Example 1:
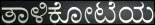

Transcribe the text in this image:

ತಾಳಿಕೋಟೆಯ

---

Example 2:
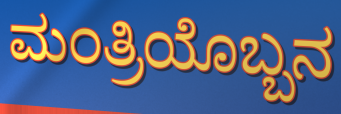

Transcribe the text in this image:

ಮಂತ್ರಿಯೊಬ್ಬನ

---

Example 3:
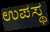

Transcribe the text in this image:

ಉಪಸ್ಥ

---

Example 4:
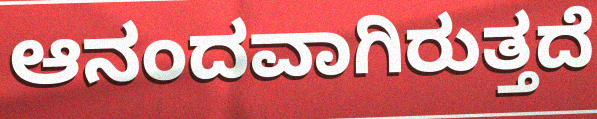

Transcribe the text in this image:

ಆನಂದವಾಗಿರುತ್ತದೆ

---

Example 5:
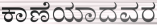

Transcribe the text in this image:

ಕಾಣೆಯಾದವರ